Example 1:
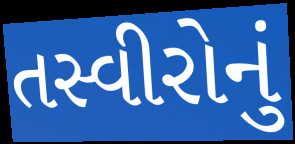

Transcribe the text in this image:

તસ્વીરોનું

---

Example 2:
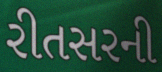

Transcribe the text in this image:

રીતસરની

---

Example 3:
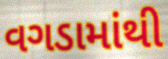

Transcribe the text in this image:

વગડામાંથી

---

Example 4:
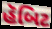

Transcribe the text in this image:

હૅબિટ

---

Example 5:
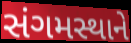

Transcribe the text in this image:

સંગમસ્થાને